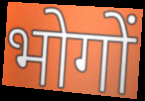
भोगों